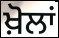
ਖ਼ੋਲਾਂ